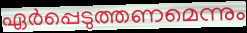
ഏർപ്പെടുത്തണമെന്നും